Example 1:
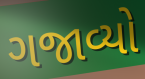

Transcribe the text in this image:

ગજાવ્યો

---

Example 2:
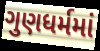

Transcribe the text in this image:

ગુણધર્મમાં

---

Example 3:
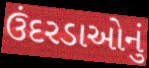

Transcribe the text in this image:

ઉંદરડાઓનું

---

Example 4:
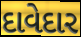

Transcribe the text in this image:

દાવેદાર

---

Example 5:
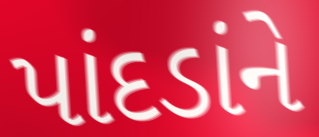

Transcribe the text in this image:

પાંદડાંને